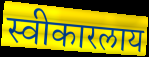
स्वीकारलाय